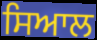
ਸਿਆਲ